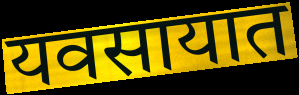
यवसायात